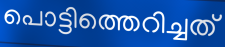
പൊട്ടിത്തെറിച്ചത്